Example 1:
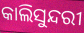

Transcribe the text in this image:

କାଲିସୁନ୍ଦରୀ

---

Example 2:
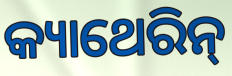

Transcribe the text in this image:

କ୍ୟାଥେରିନ୍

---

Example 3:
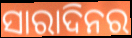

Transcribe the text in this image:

ସାରାଦିନର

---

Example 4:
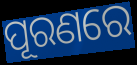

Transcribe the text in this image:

ପୂରଣରେ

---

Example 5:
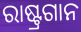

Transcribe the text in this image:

ରାଷ୍ଟ୍ରଗାନ